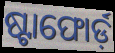
ଷ୍ଟାଫୋର୍ଡ଼